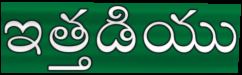
ఇత్తడియు